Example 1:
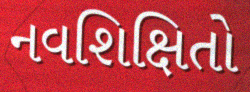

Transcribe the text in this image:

નવશિક્ષિતો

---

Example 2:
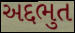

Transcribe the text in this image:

અદ્દભુત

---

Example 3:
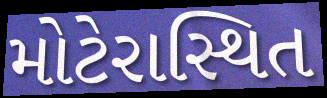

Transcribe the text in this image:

મોટેરાસ્થિત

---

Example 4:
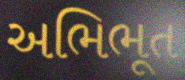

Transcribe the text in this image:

અભિભૂત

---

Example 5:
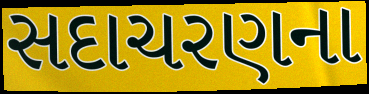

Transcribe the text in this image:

સદાચરણના